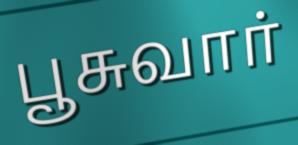
பூசுவார்